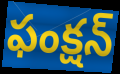
ఫంక్షన్